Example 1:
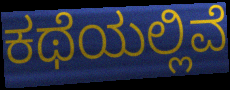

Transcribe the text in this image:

ಕಥೆಯಲ್ಲಿವೆ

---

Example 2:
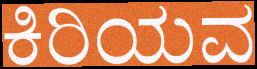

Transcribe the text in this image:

ಕಿರಿಯವ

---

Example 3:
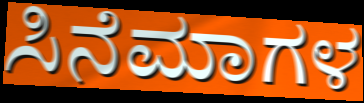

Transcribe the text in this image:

ಸಿನೆಮಾಗಳ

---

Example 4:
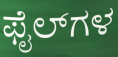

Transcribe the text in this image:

ಫೈಲ್‌ಗಳ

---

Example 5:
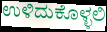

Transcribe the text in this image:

ಉಳಿದುಕೊಳ್ಳಲಿ